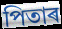
পিতাৰ